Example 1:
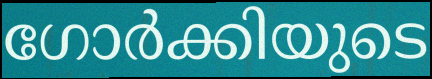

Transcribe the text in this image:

ഗോർക്കിയുടെ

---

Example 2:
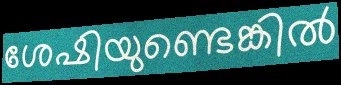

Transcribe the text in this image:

ശേഷിയുണ്ടെങ്കിൽ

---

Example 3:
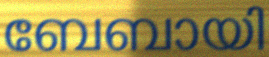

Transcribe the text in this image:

ബേബായി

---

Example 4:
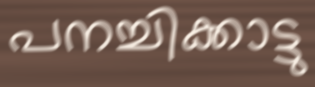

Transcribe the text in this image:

പനച്ചിക്കാട്ടു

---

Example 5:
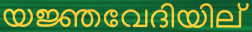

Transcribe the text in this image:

യജ്ഞവേദിയില്